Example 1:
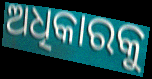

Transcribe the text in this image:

ଅଧିକାରକୁ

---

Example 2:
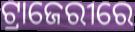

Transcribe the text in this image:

ଟ୍ରାଜେରୀରେ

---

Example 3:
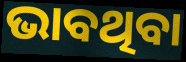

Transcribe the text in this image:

ଭାବଥିବା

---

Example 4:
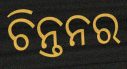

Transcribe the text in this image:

ଚିନ୍ତନର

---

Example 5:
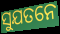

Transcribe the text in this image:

ସୁଯତନେ